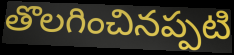
తొలగించినప్పటి